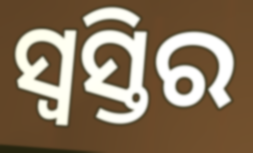
ସ୍ୱସ୍ତିର